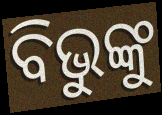
ବିଭୁଙ୍କୁ